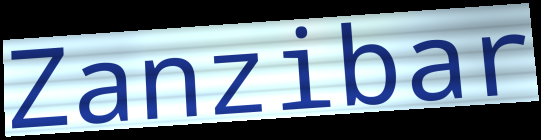
Zanzibar